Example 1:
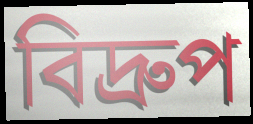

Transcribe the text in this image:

বিদ্রুপ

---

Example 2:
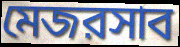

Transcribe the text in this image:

মেজরসাব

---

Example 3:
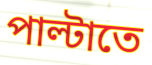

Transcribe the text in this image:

পাল্টাতে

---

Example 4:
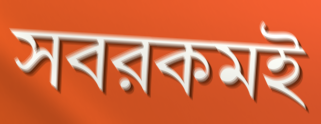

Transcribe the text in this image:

সবরকমই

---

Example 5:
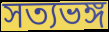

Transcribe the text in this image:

সত্যভঙ্গ